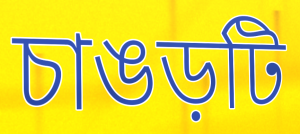
চাঙড়টি